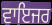
ਵਾਇਜਰ